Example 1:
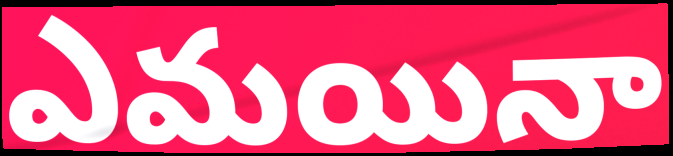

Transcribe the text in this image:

ఎమయినా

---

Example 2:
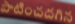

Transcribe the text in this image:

పాటించదగిన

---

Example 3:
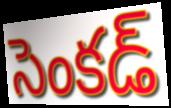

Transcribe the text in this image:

సెంకడ్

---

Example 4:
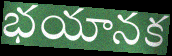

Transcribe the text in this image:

భయానక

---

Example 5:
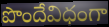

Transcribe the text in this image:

పొందేవిధంగా